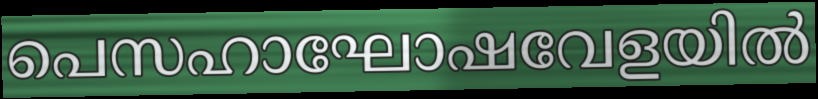
പെസഹാഘോഷവേളയിൽ